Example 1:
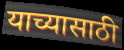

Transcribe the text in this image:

याच्यासाठी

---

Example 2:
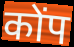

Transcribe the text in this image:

कोंप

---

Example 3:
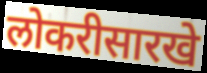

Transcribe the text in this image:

लोकरीसारखे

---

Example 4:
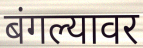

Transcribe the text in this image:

बंगल्यावर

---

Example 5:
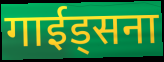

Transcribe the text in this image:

गाईड्सना